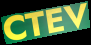
CTEV